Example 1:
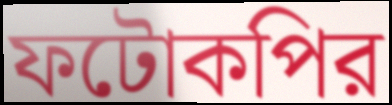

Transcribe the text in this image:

ফটোকপির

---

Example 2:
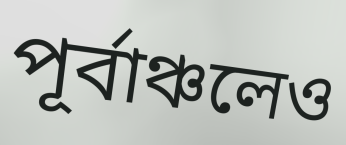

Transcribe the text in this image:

পূর্বাঞ্চলেও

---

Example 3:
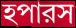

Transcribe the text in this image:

হপারস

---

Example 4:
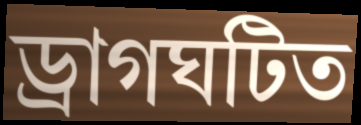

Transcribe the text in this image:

ড্রাগঘটিত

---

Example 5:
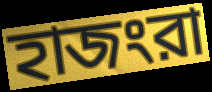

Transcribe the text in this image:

হাজংরা